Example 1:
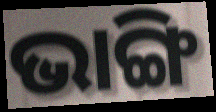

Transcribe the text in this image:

ଭାଙ୍ଗି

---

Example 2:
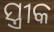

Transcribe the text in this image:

ସ୍ତ୍ରୀକ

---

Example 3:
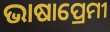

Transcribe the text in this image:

ଭାଷାପ୍ରେମୀ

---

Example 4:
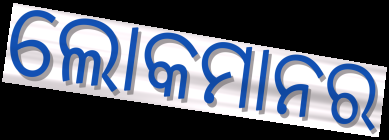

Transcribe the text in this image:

ଲୋକମାନର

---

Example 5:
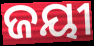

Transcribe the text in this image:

ଜୟୀ